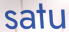
satu